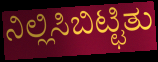
ನಿಲ್ಲಿಸಿಬಿಟ್ಟಿತು